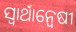
ସ୍ବାର୍ଥାନ୍ବେଷୀ